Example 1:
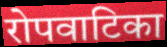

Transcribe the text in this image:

रोपवाटिका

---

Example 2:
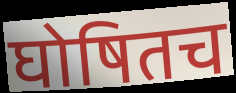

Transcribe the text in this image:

घोषितच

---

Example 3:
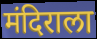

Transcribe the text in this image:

मंदिराला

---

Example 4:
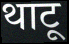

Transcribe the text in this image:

थाटू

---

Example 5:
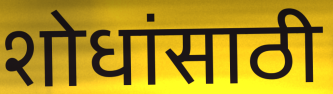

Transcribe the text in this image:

शोधांसाठी